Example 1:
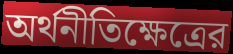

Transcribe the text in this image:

অর্থনীতিক্ষেত্রের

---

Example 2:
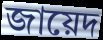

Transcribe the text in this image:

জায়েদ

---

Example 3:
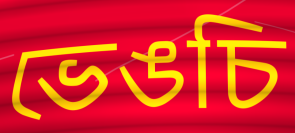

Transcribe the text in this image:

ভেঙচি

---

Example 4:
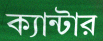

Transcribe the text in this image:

ক্যান্টার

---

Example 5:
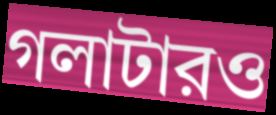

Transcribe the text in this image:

গলাটারও